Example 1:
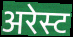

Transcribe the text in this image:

अरेस्ट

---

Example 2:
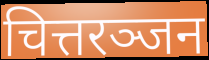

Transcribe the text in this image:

चित्तरञ्जन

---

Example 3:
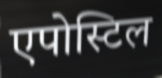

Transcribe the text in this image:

एपोस्टिल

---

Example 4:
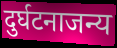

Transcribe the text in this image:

दुर्घटनाजन्य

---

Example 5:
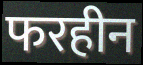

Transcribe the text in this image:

फरहीन